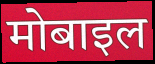
मोबाइल